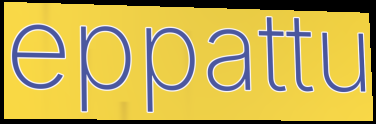
eppattu